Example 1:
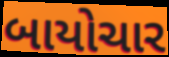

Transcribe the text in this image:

બાયોચાર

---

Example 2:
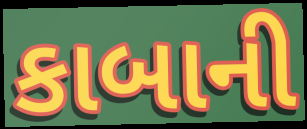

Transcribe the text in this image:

કાબાની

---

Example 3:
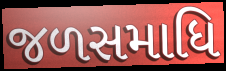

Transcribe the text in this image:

જળસમાધિ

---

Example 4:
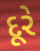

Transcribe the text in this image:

દૂરે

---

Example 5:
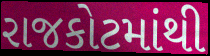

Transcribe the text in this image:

રાજકોટમાંથી